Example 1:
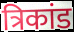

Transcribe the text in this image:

त्रिकांड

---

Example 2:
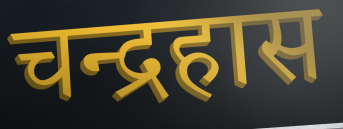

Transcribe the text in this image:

चन्द्रहास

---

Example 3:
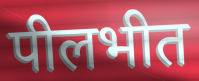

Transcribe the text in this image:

पीलभीत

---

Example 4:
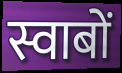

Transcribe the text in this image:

स्वाबों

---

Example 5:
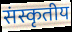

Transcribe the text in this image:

संस्कृतीय